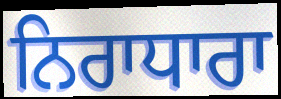
ਨਿਰਾਧਾਰਾ